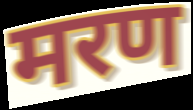
मरण